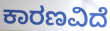
ಕಾರಣವಿದೆ